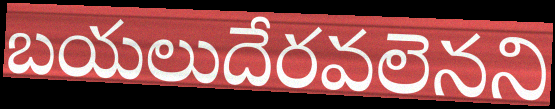
బయలుదేరవలెనని